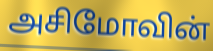
அசிமோவின்